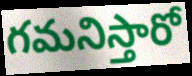
గమనిస్తారో